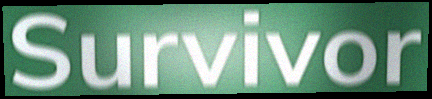
Survivor